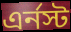
এর্নস্ট